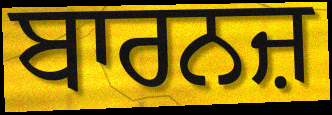
ਬਾਰਨਜ਼